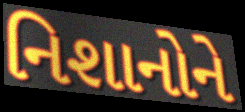
નિશાનોને